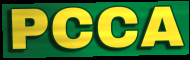
PCCA